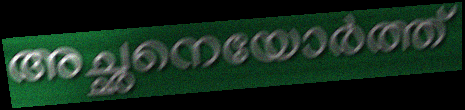
അച്ഛനെയോർത്ത്